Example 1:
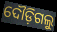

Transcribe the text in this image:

ଦୌଡ଼ିଗଲୁ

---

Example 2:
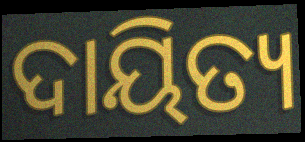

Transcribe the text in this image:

ଦାୟିତ୍ୟ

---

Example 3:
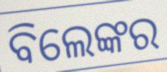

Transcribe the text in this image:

ବିଲେଙ୍କର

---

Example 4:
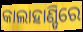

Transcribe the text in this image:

କାଲାହାଣ୍ଡିରେ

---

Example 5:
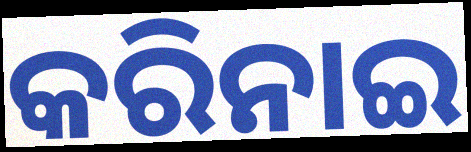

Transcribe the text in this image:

କରିନାଇ